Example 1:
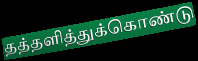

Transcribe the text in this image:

தத்தளித்துக்கொண்டு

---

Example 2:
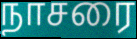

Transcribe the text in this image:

நாசரை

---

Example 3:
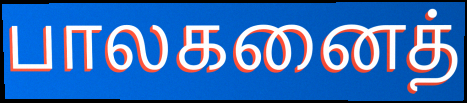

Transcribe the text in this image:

பாலகனைத்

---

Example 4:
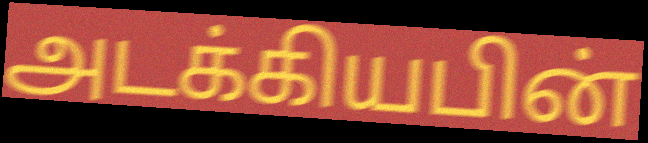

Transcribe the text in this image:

அடக்கியபின்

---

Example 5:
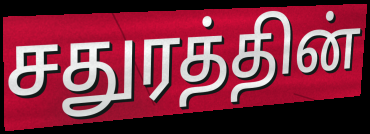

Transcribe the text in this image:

சதுரத்தின்